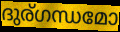
ദുര്ഗന്ധമോ